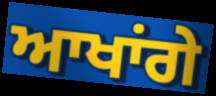
ਆਖਾਂਗੇ